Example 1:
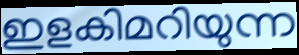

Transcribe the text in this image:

ഇളകിമറിയുന്ന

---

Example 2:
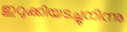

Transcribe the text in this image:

ഇറുക്കിയടച്ചുനിന്നു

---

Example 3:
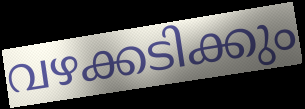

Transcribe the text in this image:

വഴക്കടിക്കും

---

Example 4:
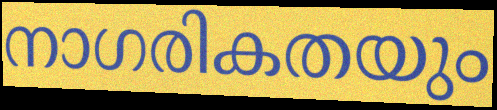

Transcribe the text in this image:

നാഗരികതയും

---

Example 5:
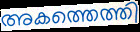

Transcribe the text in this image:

അകത്തെത്തി